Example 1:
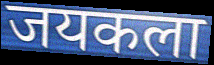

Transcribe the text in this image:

जयकला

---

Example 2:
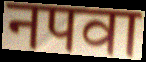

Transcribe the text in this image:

नपवा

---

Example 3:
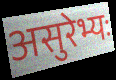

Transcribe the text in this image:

असुरेभ्यः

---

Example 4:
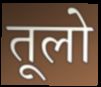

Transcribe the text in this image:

तूलो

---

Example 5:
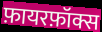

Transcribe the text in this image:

फ़ायरफ़ॉक्स